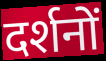
दर्शनों